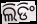
ଲିଡିଂ